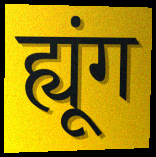
ह्यूंग